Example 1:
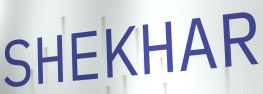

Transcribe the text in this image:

SHEKHAR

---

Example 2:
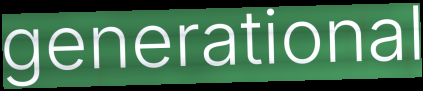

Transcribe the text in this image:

generational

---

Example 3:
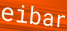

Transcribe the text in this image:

eibar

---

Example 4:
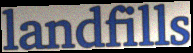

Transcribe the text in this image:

landfills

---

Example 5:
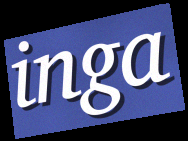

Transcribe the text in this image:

inga